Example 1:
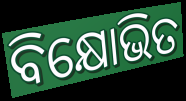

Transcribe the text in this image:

ବିକ୍ଷୋଭିତ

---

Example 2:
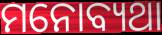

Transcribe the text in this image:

ମନୋବ୍ୟଥା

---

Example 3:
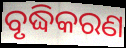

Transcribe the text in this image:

ବୃଦ୍ଧିକରଣ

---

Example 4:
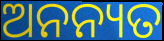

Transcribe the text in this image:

ଅନନ୍ୟତ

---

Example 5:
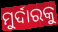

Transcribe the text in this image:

ମୁର୍ଦାରକୁ